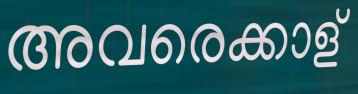
അവരെക്കാള്